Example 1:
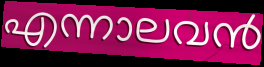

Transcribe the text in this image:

എന്നാലവൻ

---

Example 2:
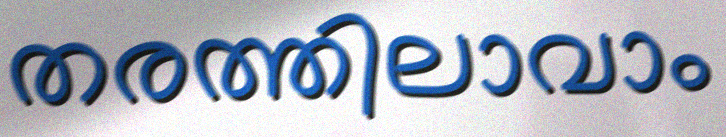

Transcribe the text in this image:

തരത്തിലാവാം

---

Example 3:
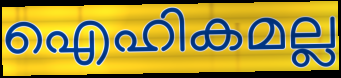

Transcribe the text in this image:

ഐഹികമല്ല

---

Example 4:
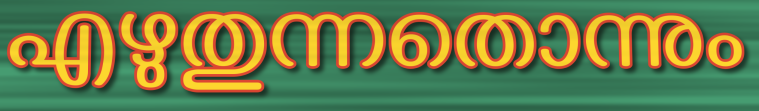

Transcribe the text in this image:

എഴുതുന്നതൊന്നും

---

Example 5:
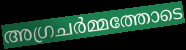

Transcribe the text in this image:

അഗ്രചർമ്മത്തോടെ